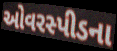
ઓવરસ્પીડના